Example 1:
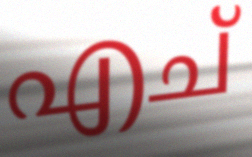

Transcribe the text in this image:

എച്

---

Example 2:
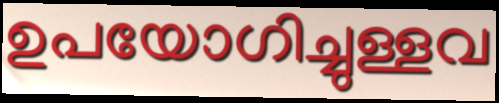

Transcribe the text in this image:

ഉപയോഗിച്ചുള്ളവ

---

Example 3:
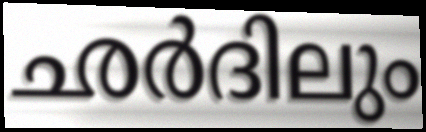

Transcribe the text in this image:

ഛർദിലും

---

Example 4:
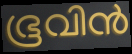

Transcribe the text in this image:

ഭൂവിൻ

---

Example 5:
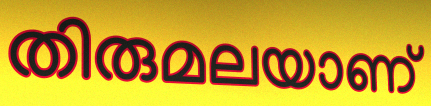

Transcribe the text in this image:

തിരുമലയാണ്